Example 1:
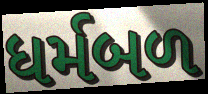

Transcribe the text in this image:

ધર્મબળ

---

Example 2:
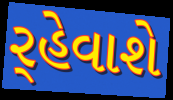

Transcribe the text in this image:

ર્‌હેવાશે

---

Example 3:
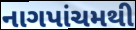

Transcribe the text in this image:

નાગપાંચમથી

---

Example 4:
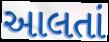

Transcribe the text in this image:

આલતાં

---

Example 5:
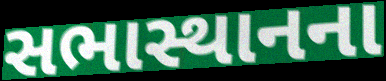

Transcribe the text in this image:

સભાસ્થાનના